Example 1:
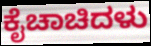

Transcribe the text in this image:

ಕೈಚಾಚಿದಳು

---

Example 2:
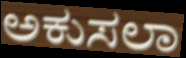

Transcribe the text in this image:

ಅಕುಸಲಾ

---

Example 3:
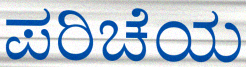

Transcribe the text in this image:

ಪರಿಚೆಯ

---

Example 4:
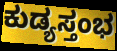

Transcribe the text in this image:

ಕುಡ್ಯಸ್ತಂಭ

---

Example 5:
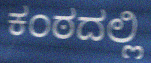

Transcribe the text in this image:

ಕಂಠದಲ್ಲಿ